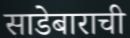
साडेबाराची